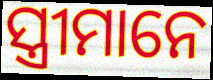
ସ୍ତ୍ରୀମାନେ